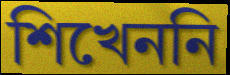
শিখেননি